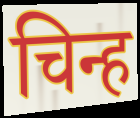
चिन्ह